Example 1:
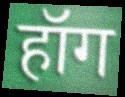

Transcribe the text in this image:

हॉग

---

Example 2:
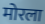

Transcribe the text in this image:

मोरला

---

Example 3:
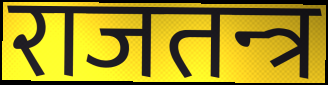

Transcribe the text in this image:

राजतन्त्र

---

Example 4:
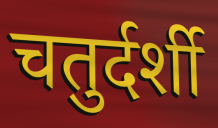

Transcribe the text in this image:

चतुर्दर्शी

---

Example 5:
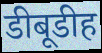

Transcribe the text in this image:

डीबूडीह